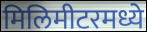
मिलिमीटरमध्ये